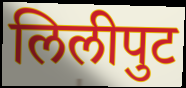
लिलीपुट